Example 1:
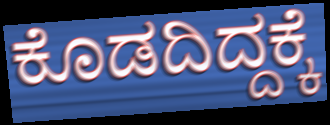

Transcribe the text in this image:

ಕೊಡದಿದ್ದಕ್ಕೆ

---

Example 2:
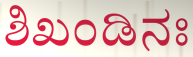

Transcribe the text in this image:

ಶಿಖಂಡಿನಃ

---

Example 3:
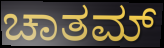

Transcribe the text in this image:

ಚಾತಮ್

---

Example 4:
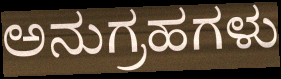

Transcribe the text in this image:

ಅನುಗ್ರಹಗಳು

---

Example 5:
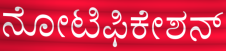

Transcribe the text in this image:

ನೋಟಿಫಿಕೇಶನ್